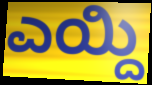
ಎಯ್ದಿ